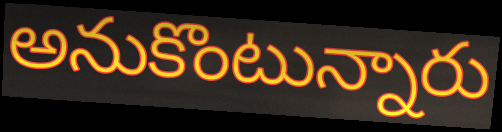
అనుకొంటున్నారు